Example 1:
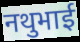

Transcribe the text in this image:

नथुभाई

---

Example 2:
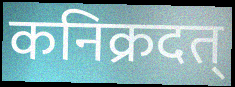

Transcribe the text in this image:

कनिक्रदत्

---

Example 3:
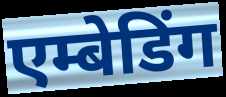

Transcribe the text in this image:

एम्बेडिंग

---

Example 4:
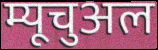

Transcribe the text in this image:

म्यूचुअल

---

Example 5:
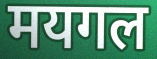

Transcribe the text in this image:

मयगल